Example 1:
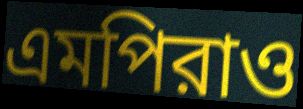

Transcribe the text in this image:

এমপিরাও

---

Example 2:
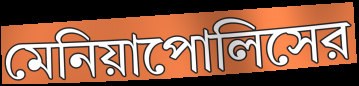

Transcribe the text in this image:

মেনিয়াপোলিসের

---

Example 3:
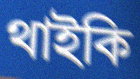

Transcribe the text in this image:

থাইকি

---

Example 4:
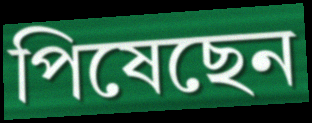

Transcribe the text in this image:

পিষেছেন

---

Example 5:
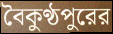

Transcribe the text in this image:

বৈকুণ্ঠপুরের